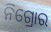
ନିଗ୍ରୋର